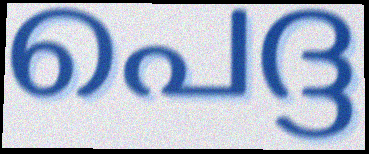
പെദ്ദ